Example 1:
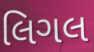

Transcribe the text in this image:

લિગલ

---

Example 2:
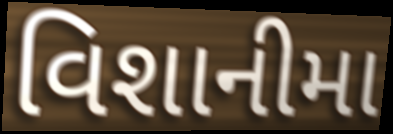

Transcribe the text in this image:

વિશાનીમા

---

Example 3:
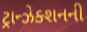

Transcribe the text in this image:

ટ્રાન્ઝેક્શનની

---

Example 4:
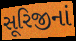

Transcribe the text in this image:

સૂરિજીનાં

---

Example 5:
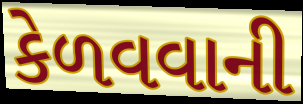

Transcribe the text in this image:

કેળવવાની